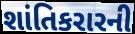
શાંતિકરારની